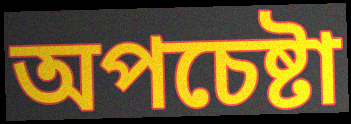
অপচেষ্টা